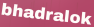
bhadralok